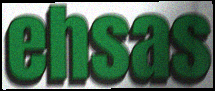
ehsas